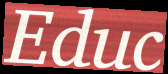
Educ